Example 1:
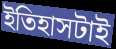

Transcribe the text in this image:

ইতিহাসটাই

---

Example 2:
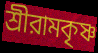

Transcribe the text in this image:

শ্রীরামকৃষ্ণ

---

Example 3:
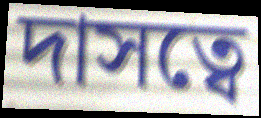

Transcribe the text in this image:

দাসত্বে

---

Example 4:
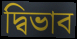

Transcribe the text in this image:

দ্বিভাব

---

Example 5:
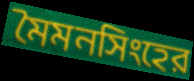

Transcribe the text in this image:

মৈমনসিংহের